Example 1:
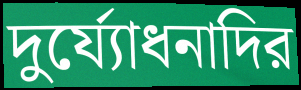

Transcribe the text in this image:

দুর্য্যোধনাদির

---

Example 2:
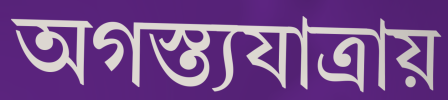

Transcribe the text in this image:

অগস্ত্যযাত্রায়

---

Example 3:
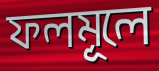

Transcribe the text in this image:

ফলমূলে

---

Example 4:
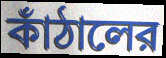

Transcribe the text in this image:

কাঁঠালের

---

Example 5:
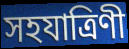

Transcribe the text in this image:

সহযাত্রিণী